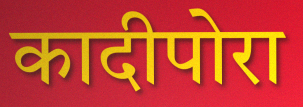
कादीपोरा